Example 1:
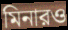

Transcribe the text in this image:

মিনারও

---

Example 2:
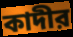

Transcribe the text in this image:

কাদীর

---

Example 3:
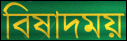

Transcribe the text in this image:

বিষাদময়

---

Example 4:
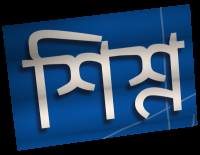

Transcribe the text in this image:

শিশ্ন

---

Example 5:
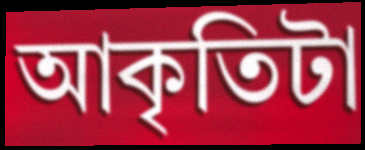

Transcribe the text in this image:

আকৃতিটা